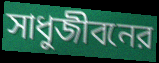
সাধুজীবনের